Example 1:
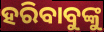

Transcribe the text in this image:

ହରିବାବୁଙ୍କୁ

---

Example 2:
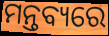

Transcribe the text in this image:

ମନ୍ତବ୍ୟରେ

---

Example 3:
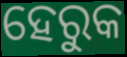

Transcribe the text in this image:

ହେରୁକ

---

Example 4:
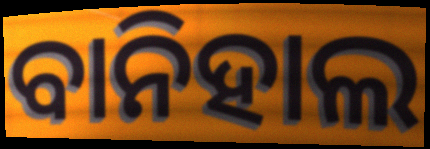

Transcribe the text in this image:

ବାନିହାଲ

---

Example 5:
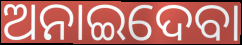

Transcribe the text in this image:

ଅନାଇଦେବା